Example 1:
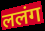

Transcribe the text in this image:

ललंग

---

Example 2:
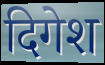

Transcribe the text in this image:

दिगेश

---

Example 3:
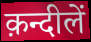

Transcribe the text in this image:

क़न्दीलें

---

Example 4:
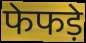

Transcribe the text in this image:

फेफड़े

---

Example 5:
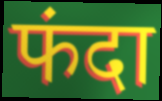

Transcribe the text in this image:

फंदा